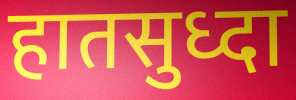
हातसुध्दा